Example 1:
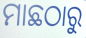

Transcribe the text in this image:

ମାଛଠାରୁ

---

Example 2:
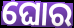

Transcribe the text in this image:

ଘୋର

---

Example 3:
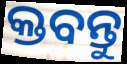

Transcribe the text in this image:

କ୍ତବନ୍ତୁ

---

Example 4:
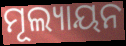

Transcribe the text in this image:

ମୂଲ୍ୟାୟନ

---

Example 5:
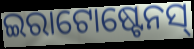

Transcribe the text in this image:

ଇରାଟୋଷ୍ଟେନସ୍